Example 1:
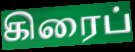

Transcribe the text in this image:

கிரைப்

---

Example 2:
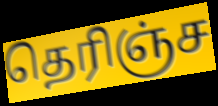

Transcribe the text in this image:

தெரிஞ்ச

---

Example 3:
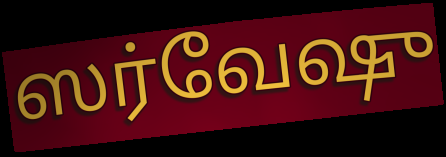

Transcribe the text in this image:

ஸர்வேஷு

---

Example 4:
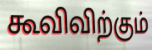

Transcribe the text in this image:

கூவிவிற்கும்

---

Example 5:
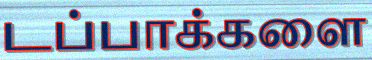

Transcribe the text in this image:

டப்பாக்களை